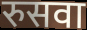
रुसवा